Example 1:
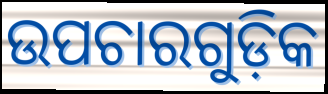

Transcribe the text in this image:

ଉପଚାରଗୁଡ଼ିକ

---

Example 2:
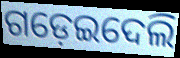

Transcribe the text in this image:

ଗଡ଼େଇଦେଲି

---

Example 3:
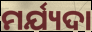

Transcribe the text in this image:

ମର୍ଯ୍ୟଦା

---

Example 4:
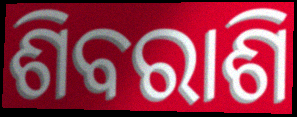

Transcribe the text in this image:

ଶିବରାଶି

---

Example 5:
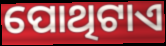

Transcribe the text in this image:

ପୋଥିଟାଏ